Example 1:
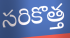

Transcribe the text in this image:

సరికొత్త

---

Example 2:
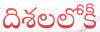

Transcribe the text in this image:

దిశలలోకీ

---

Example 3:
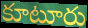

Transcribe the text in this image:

కూటూరు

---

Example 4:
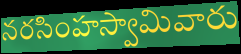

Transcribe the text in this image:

నరసింహస్వామివారు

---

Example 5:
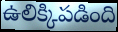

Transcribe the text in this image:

ఉలిక్కిపడింది